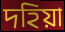
দহিয়া